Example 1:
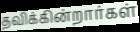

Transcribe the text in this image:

தவிக்கின்றார்கள்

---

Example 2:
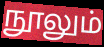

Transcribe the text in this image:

நூலும்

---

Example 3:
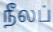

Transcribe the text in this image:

நீலப்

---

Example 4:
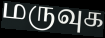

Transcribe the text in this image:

மருவுக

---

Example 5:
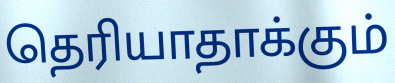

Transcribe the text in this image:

தெரியாதாக்கும்